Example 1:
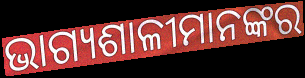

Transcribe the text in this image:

ଭାଗ୍ୟଶାଳୀମାନଙ୍କର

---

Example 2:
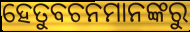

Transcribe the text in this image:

ହେତୁବଚନମାନଙ୍କରୁ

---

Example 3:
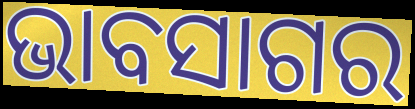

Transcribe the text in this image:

ଭାବସାଗର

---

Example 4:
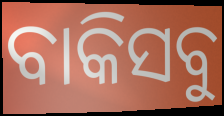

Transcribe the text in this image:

ବାକିସବୁ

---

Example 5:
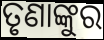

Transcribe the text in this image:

ତୃଣାଙ୍କୁର